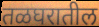
तळघरातील